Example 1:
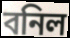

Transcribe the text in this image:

বনিল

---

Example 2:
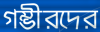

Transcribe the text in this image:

গম্ভীরদের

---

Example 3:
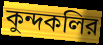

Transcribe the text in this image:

কুন্দকলির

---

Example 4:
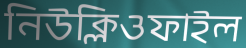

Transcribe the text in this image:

নিউক্লিওফাইল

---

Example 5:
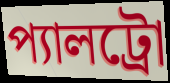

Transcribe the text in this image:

প্যালট্রো